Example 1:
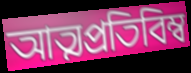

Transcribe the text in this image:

আত্মপ্রতিবিম্ব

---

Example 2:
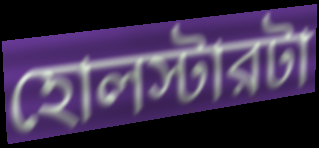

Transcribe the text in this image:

হোলস্টারটা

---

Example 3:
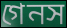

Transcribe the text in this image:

গেনস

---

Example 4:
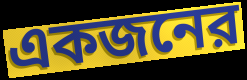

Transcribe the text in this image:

একজনের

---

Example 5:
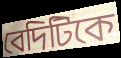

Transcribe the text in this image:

বেদিটিকে